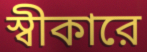
স্বীকারে